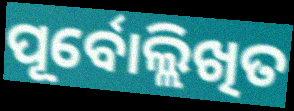
ପୂର୍ବୋଲ୍ଲିଖିତ